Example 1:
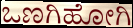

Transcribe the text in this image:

ಒಣಗಿಹೋಗಿ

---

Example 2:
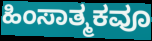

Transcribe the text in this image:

ಹಿಂಸಾತ್ಮಕವೂ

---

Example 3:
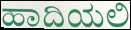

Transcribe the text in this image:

ಹಾದಿಯಲಿ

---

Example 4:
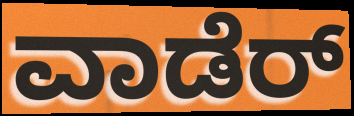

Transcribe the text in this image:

ವಾಡೆರ್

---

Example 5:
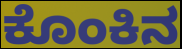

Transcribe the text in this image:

ಕೊಂಕಿನ